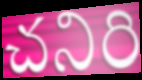
చనిరి